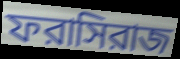
ফরাসিরাজ